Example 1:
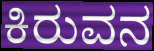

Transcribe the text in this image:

ಕಿರುವನ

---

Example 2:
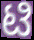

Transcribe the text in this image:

ಟಿ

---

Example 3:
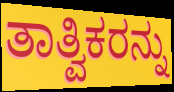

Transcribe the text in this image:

ತಾತ್ವಿಕರನ್ನು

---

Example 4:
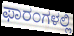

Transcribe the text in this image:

ಫಾರಂಗಳಲ್ಲಿ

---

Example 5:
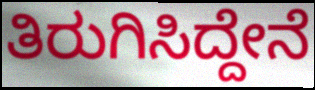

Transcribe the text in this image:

ತಿರುಗಿಸಿದ್ದೇನೆ